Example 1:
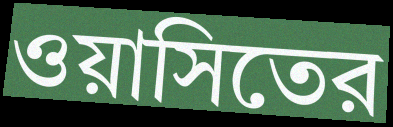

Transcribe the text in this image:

ওয়াসিতের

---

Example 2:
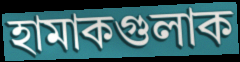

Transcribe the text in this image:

হামাকগুলাক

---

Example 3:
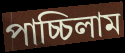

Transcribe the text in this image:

পাচ্চিলাম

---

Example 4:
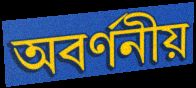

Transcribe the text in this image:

অবর্ণনীয়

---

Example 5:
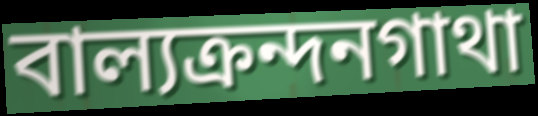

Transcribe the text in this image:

বাল্যক্রন্দনগাথা